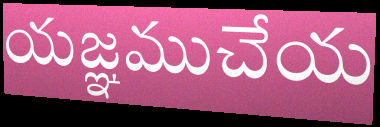
యజ్ఞముచేయ